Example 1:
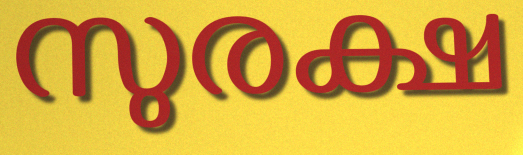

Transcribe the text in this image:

സുരക്ഷ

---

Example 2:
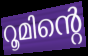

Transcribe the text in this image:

റൂമിന്റെ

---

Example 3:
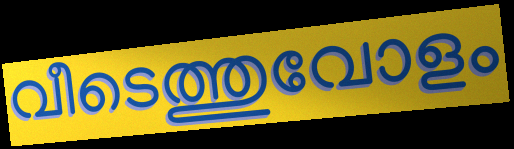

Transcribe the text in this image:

വീടെത്തുവോളം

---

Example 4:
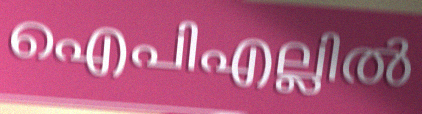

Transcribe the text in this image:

ഐപിഎല്ലിൽ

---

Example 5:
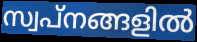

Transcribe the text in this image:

സ്വപ്നങ്ങളിൽ